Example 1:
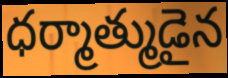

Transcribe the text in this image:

ధర్మాత్ముడైన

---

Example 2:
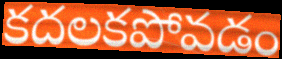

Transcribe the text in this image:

కదలకపోవడం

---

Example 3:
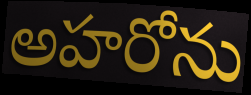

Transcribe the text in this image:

అహరోను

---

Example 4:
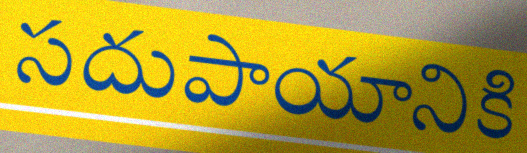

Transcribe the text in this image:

సదుపాయానికి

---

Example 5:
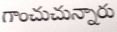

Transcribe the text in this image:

గాంచుచున్నారు